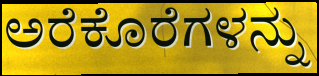
ಅರೆಕೊರೆಗಳನ್ನು